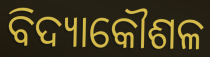
ବିଦ୍ୟାକୌଶଳ